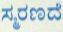
ಸ್ಮರಣದೆ